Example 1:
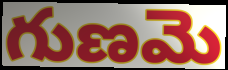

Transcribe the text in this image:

గుణమె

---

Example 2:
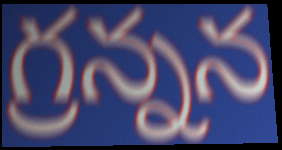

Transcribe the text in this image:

గ్రన్నన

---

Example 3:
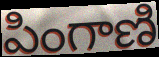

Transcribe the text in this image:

పింగాణి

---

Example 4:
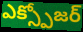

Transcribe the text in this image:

ఎక్స్పోజర్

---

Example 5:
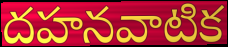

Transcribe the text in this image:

దహనవాటిక